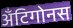
अँटिगोनस